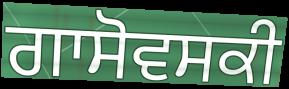
ਗਾਸੋਵਸਕੀ